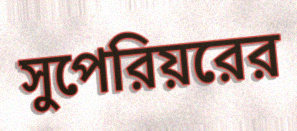
সুপেরিয়রের